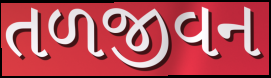
તળજીવન